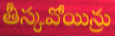
తీస్కవోయిన్రు